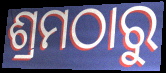
ଶ୍ରମଠାରୁ